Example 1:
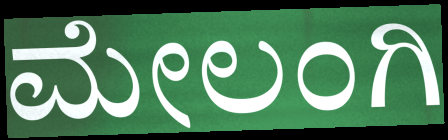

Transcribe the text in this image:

ಮೇಲಂಗಿ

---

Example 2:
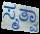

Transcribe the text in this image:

ಸ್ಮೃತ್ವಾ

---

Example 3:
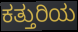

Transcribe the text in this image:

ಕತ್ತುರಿಯ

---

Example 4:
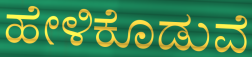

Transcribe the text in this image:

ಹೇಳಿಕೊಡುವೆ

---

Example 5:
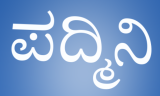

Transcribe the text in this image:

ಪದ್ಮಿನಿ